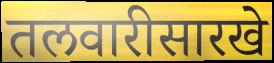
तलवारीसारखे